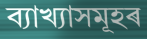
ব্যাখ্যাসমূহৰ